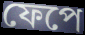
ফেপে